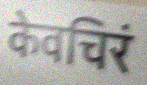
केवचिरं